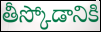
తీస్కోడానికి